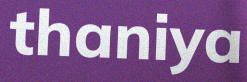
thaniya